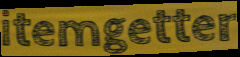
itemgetter